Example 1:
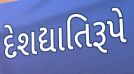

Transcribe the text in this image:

દેશદ્યાતિરૂપે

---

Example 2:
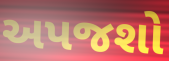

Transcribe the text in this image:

અપજશો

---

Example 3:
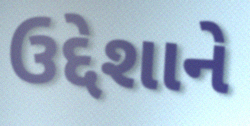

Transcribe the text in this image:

ઉદ્દેશાને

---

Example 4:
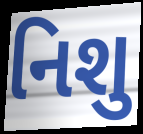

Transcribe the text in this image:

નિશુ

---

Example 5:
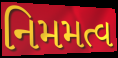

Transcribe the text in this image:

નિમમત્વ